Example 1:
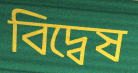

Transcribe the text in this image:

বিদ্বেষ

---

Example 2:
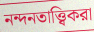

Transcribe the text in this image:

নন্দনতাত্ত্বিকরা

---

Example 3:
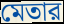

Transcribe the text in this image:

মেতার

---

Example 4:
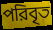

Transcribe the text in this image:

পরিবৃত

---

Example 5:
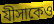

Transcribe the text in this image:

যীসাকেও